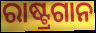
ରାଷ୍ଟ୍ରଗାନ